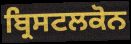
ਬ੍ਰਿਸਟਲਕੋਨ